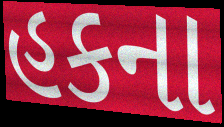
હકના